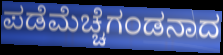
ಪಡೆಮೆಚ್ಚೆಗಂಡನಾದ